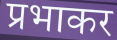
प्रभाकर